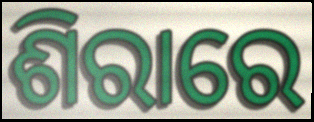
ଶିରାରେ